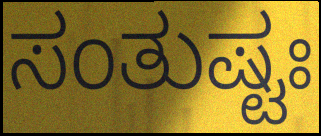
ಸಂತುಷ್ಟಃ